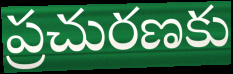
ప్రచురణకు